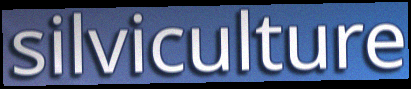
silviculture